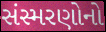
સંસ્મરણોનો